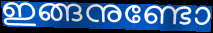
ഇങ്ങനുണ്ടോ